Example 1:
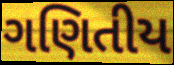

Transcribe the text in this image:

ગણિતીય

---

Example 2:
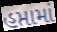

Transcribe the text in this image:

હપ્તામાં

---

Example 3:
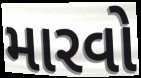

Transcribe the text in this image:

મારવો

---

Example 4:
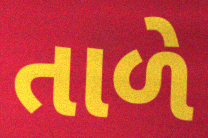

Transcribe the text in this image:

તાળે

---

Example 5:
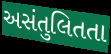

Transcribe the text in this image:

અસંતુલિતતા